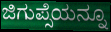
ಜಿಗುಪ್ಸೆಯನ್ನೂ